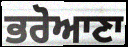
ਭਰੋਆਣਾ